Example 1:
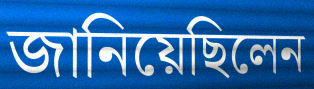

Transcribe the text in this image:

জানিয়েছিলেন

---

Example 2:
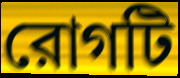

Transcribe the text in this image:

রোগটি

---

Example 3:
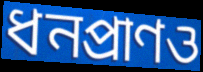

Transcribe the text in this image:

ধনপ্রাণও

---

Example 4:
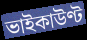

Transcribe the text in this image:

ভাইকাউণ্ট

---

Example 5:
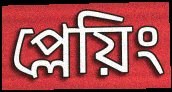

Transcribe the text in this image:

প্লেয়িং